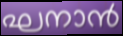
ഘനാൻ